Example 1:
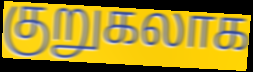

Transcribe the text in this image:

குறுகலாக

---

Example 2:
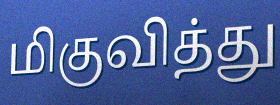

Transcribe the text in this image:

மிகுவித்து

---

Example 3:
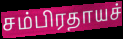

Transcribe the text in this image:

சம்பிரதாயச்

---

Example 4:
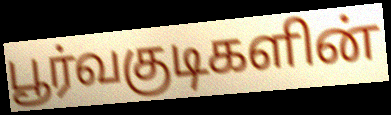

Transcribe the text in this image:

பூர்வகுடிகளின்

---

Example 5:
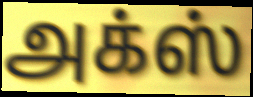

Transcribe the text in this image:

அக்ஸ்